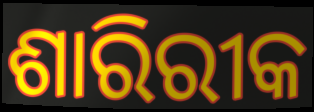
ଶାରିରୀକ